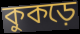
কুকড়ে